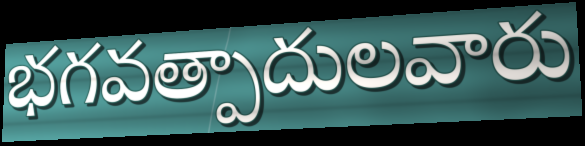
భగవత్పాదులవారు